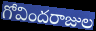
గోవిందరాజుల